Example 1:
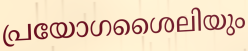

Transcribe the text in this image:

പ്രയോഗശൈലിയും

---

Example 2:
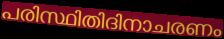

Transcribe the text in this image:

പരിസ്ഥിതിദിനാചരണം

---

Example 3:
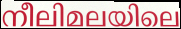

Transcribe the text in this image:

നീലിമലയിലെ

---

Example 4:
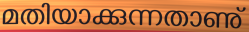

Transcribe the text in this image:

മതിയാക്കുന്നതാണു്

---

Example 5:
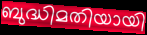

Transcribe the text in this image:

ബുദ്ധിമതിയായി